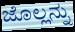
ಜೊಲ್ಲನ್ನು